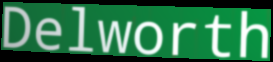
Delworth